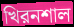
খিরনশাল